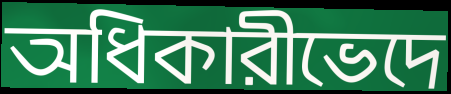
অধিকারীভেদে